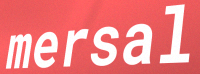
mersal